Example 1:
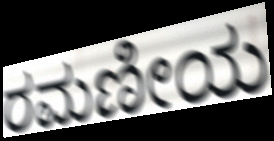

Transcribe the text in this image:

ರಮಣೀಯ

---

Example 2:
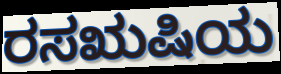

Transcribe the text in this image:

ರಸಋಷಿಯ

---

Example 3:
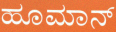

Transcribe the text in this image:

ಹೂಮಾನ್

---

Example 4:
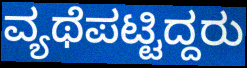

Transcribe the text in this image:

ವ್ಯಥೆಪಟ್ಟಿದ್ದರು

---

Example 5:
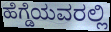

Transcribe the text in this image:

ಹೆಗ್ಡೆಯವರಲ್ಲಿ